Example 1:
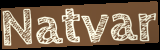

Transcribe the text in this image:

Natvar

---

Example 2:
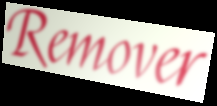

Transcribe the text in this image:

Remover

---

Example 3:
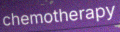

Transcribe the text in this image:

chemotherapy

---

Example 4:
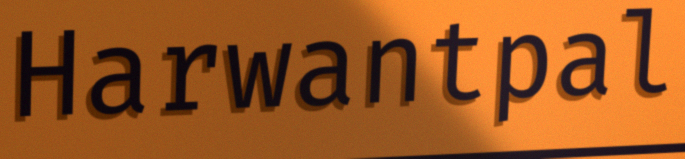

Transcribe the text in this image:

Harwantpal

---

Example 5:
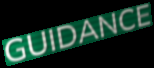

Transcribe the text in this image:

GUIDANCE